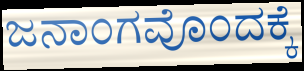
ಜನಾಂಗವೊಂದಕ್ಕೆ